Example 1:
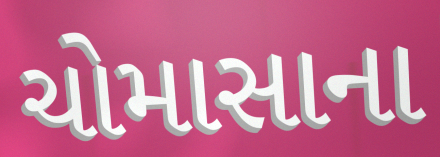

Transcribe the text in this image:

ચોમાસાના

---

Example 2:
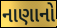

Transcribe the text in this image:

નાણાનો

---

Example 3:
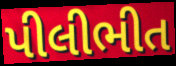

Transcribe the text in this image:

પીલીભીત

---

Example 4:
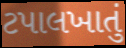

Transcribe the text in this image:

ટપાલખાતું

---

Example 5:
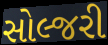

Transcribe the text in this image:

સોલ્જરી